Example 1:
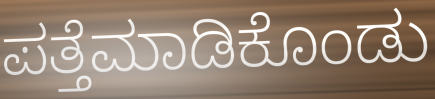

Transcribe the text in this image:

ಪತ್ತೆಮಾಡಿಕೊಂಡು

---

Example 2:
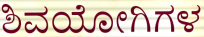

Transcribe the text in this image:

ಶಿವಯೋಗಿಗಳ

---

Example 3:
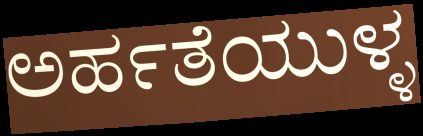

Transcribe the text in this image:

ಅರ್ಹತೆಯುಳ್ಳ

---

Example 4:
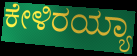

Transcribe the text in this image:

ಕೇಳಿರಯ್ಯಾ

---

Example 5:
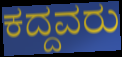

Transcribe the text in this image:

ಕದ್ದವರು